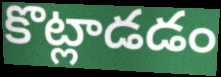
కొట్లాడడం